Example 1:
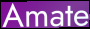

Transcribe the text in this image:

Amate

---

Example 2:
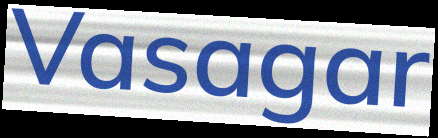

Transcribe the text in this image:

Vasagar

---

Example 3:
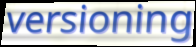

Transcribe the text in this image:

versioning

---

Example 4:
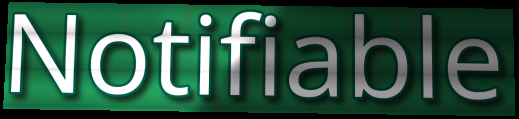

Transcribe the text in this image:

Notifiable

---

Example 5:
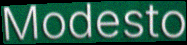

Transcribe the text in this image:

Modesto